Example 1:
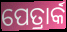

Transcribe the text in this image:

ପେତ୍ରାର୍କ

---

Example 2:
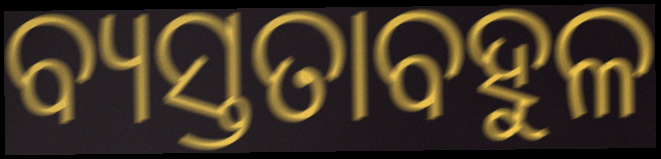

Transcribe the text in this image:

ବ୍ୟସ୍ତତାବହୁଳ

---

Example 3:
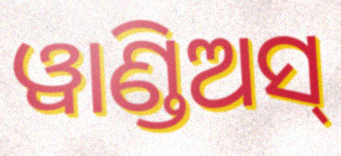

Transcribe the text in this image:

ୱାଣ୍ଡିଅସ୍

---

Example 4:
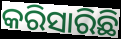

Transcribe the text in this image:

କରିସାରିଛି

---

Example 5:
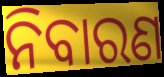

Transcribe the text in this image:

ନିବାରଣ